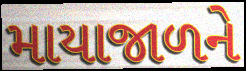
માયાજાળને